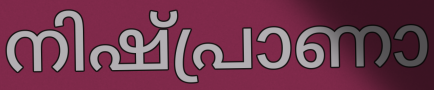
നിഷ്പ്രാണാ